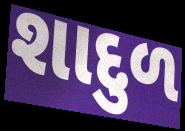
શાદુળ